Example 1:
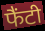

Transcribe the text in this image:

फैंटी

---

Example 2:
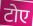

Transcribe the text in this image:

टोए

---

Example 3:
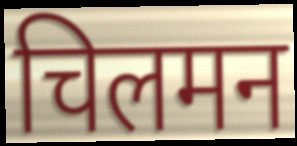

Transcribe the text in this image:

चिलमन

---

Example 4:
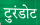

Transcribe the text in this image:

टुरंडोट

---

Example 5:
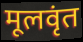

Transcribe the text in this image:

मूलवृंत